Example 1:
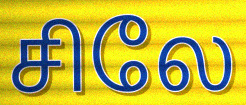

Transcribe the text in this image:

சிலே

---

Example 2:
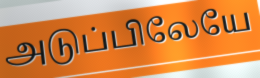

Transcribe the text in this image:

அடுப்பிலேயே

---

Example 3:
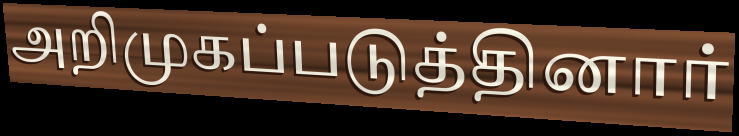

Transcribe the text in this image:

அறிமுகப்படுத்தினார்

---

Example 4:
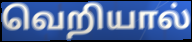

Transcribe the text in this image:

வெறியால்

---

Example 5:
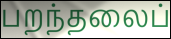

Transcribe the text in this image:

பறந்தலைப்